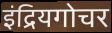
इंद्रियगोचर